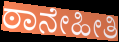
ಠಾನೇಹೀತಿ